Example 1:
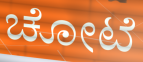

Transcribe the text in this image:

ಚೋಟೆ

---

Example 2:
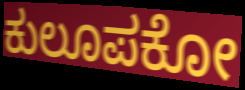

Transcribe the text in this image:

ಕುಲೂಪಕೋ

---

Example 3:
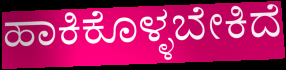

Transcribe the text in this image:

ಹಾಕಿಕೊಳ್ಳಬೇಕಿದೆ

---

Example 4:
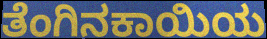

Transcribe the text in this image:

ತೆಂಗಿನಕಾಯಿಯ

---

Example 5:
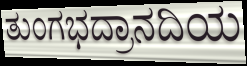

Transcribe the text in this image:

ತುಂಗಭದ್ರಾನದಿಯ